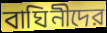
বাঘিনীদের